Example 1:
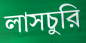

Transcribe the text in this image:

লাসচুরি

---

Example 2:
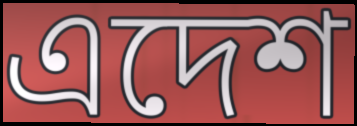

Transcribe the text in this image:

এদেশ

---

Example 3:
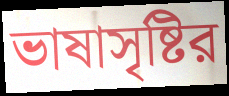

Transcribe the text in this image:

ভাষাসৃষ্টির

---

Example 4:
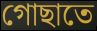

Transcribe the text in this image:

গোছাতে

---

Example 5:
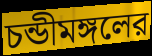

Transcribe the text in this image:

চন্ডীমঙ্গলের